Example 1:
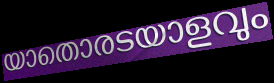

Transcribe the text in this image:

യാതൊരടയാളവും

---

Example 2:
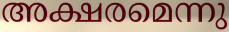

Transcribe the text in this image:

അക്ഷരമെന്നു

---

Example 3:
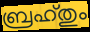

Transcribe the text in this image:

ബ്രഹ്തും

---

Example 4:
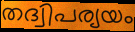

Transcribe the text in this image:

തദ്വിപര്യയം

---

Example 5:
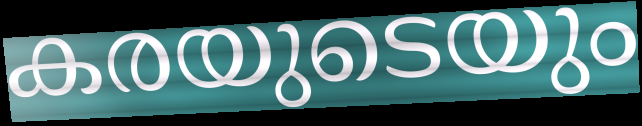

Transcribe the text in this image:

കരയുടെയും